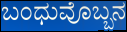
ಬಂಧುವೊಬ್ಬನ